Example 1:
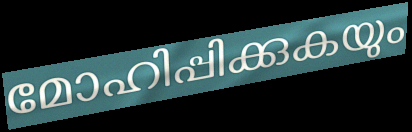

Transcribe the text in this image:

മോഹിപ്പിക്കുകയും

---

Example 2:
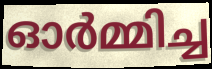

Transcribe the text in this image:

ഓർമ്മിച്ച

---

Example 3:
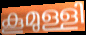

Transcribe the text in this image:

കൂമുള്ളി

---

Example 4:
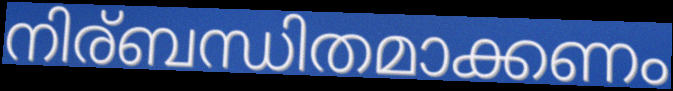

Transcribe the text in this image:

നിര്ബന്ധിതമാക്കണം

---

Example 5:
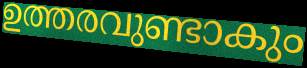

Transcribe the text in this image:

ഉത്തരവുണ്ടാകും